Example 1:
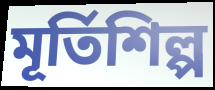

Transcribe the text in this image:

মূর্তিশিল্প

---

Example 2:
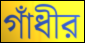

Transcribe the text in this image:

গাঁধীর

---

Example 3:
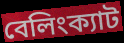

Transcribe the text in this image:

বেলিংক্যাট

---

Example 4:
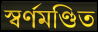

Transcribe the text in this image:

স্বর্ণমণ্ডিত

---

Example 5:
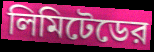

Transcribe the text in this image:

লিমিটেডের